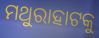
ମଥୁରାହାଟକୁ